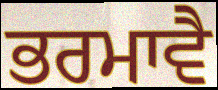
ਭਰਮਾਵੈ